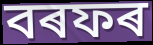
বৰফৰ